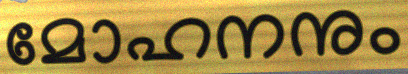
മോഹനനും